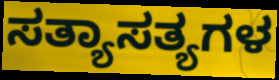
ಸತ್ಯಾಸತ್ಯಗಳ